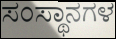
ಸಂಸ್ಥಾನಗಳ